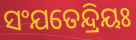
ସଂଯତେନ୍ଦ୍ରିୟଃ